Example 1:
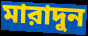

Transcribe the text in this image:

মারাদুন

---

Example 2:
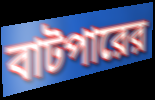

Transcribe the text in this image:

বাটপারের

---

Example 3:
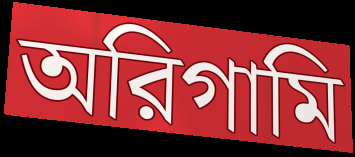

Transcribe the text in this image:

অরিগামি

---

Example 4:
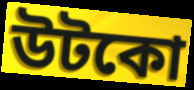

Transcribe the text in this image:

উটকো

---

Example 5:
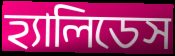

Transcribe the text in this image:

হ্যালিডেস